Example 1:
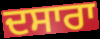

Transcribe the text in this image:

ਦਸਾਰਾ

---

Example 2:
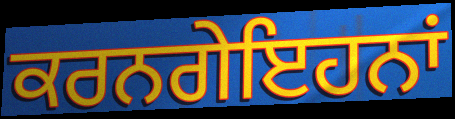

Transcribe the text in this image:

ਕਰਨਗੇਇਹਨਾਂ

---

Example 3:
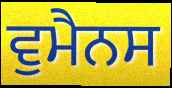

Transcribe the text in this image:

ਵੁਮੈਨਸ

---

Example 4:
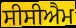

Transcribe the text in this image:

ਸੀਸੀਐਮ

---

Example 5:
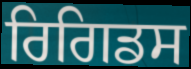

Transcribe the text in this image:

ਰਿਗਿਡਸ